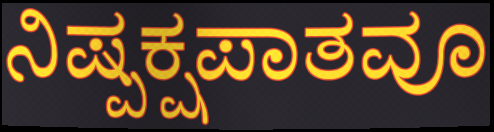
ನಿಷ್ಪಕ್ಷಪಾತವೂ